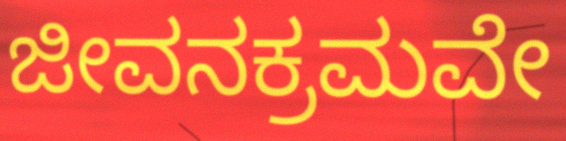
ಜೀವನಕ್ರಮವೇ